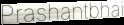
Prashantbhai